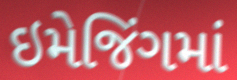
ઇમેજિંગમાં